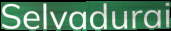
Selvadurai